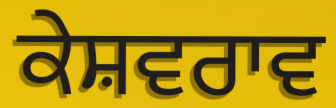
ਕੇਸ਼ਵਰਾਵ